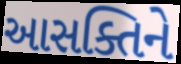
આસક્તિને